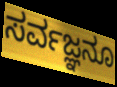
ಸರ್ವಜ್ಞನೂ